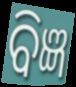
ବିଜ୍ଞ